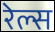
रेल्स